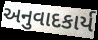
અનુવાદકાર્ય